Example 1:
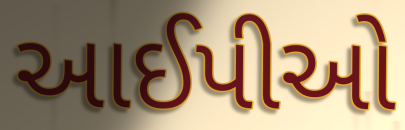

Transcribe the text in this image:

આઈપીઓ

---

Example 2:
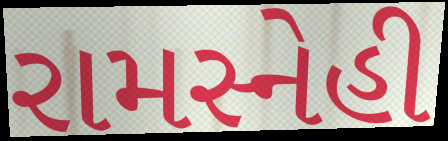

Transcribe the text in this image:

રામસ્નેહી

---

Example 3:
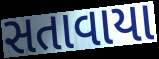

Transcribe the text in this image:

સતાવાયા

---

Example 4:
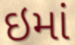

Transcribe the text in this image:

ઇમાં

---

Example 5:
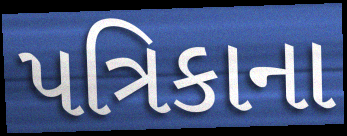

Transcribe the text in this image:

પત્રિકાના